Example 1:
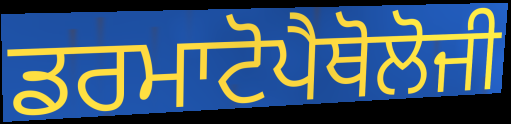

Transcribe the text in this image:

ਡਰਮਾਟੋਪੈਥੋਲੋਜੀ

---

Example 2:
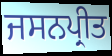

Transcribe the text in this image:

ਜਸਨਪ੍ਰੀਤ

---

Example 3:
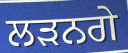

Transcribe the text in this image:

ਲੜਨਗੇ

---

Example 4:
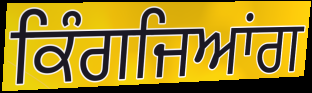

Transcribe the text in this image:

ਕਿੰਗਜਿਆਂਗ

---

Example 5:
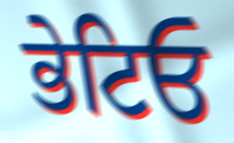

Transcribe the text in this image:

ਭੇਟਿਓ